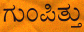
ಗುಂಪಿತ್ತು